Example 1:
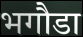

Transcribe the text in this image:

भगौडा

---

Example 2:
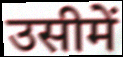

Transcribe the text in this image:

उसीमें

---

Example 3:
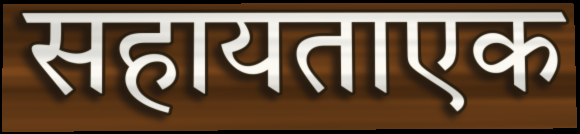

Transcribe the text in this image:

सहायताएक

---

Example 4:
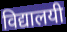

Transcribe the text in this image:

विद्यालयी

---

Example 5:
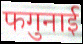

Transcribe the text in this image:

फगुनाई